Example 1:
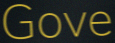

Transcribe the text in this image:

Gove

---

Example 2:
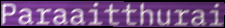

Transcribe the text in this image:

Paraaitthurai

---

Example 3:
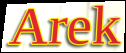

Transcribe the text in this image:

Arek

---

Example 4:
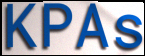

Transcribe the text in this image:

KPAs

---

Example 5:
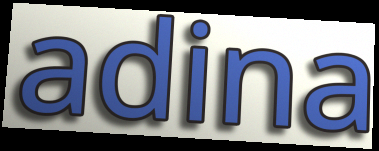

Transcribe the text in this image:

adina